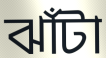
ঝাঁটা